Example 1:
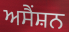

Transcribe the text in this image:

ਅਸੈਂਸ਼ਨ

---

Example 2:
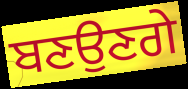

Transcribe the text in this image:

ਬਣਉਣਗੇ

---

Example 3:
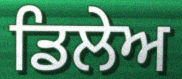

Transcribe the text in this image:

ਡਿਲੇਅ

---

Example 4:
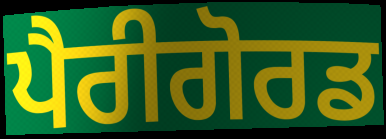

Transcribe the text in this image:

ਪੈਰੀਗੋਰਡ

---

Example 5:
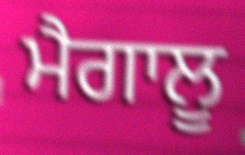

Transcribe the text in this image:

ਮੈਗਾਲੂ